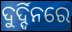
ଦୁର୍ଦ୍ଦିନରେ